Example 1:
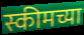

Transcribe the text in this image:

स्कीमच्या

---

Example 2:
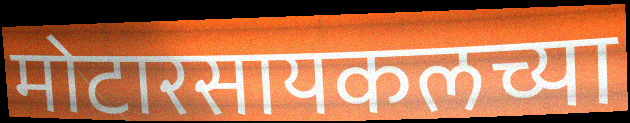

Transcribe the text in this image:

मोटारसायकलच्या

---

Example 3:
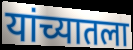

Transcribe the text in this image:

यांच्यातला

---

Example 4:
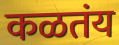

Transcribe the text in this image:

कळतंय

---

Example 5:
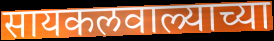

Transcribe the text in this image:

सायकलवाल्याच्या